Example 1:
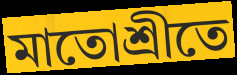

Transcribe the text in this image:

মাতোশ্রীতে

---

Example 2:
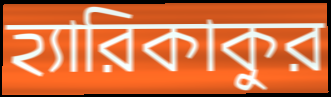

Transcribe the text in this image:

হ্যারিকাকুর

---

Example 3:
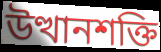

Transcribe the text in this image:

উত্থানশক্তি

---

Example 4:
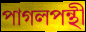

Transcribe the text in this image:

পাগলপন্থী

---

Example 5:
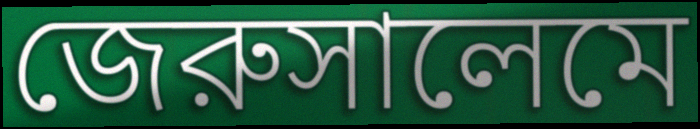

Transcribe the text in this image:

জেরুসালেমে